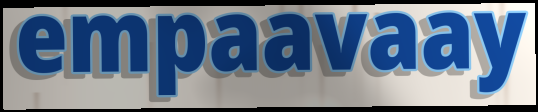
empaavaay